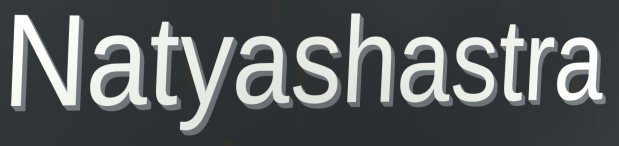
Natyashastra